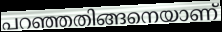
പറഞ്ഞതിങ്ങനെയാണ്